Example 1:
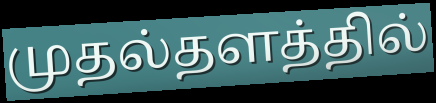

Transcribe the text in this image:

முதல்தளத்தில்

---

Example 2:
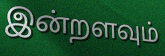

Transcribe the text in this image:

இன்றளவும்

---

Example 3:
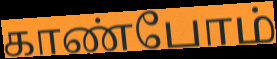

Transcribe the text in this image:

காண்போம்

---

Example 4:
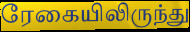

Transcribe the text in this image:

ரேகையிலிருந்து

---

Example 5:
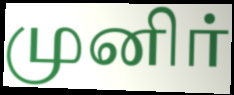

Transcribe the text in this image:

முனிர்